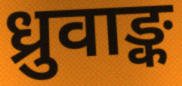
ध्रुवाङ्क